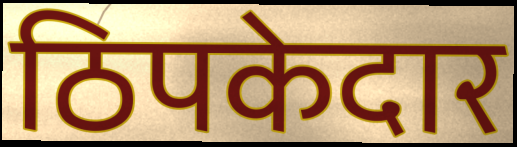
ठिपकेदार